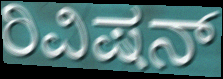
ರಿವಿಷನ್